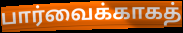
பார்வைக்காகத்